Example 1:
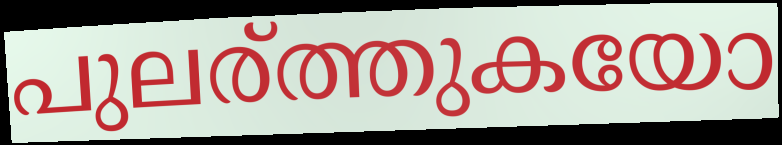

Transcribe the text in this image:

പുലര്ത്തുകയോ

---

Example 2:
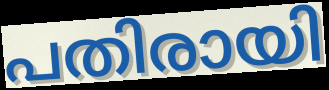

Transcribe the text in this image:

പതിരായി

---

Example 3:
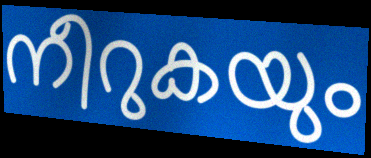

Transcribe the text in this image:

നീറുകയും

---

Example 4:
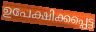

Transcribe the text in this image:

ഉപേക്ഷിക്കപ്പെട്ട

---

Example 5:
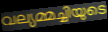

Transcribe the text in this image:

വല്യമ്മച്ചിയുടെ